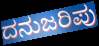
ದನುಜರಿಪು